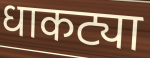
धाकट्या